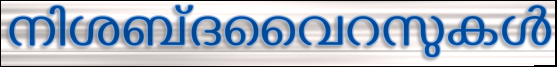
നിശബ്‌ദവൈറസുകൾ